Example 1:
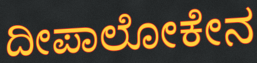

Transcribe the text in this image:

ದೀಪಾಲೋಕೇನ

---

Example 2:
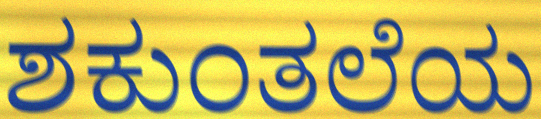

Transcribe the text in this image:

ಶಕುಂತಲೆಯ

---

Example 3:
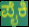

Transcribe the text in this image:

ಪೈಕಿ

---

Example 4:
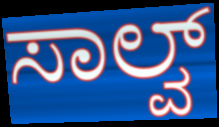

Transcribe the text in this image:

ಸಾಲ್ವ್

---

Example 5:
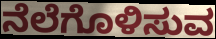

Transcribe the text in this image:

ನೆಲೆಗೊಳಿಸುವ